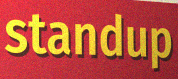
standup